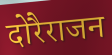
दोरैराजन